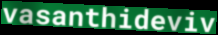
vasanthideviv